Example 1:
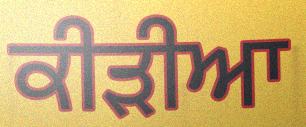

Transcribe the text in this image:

ਕੀੜੀਆ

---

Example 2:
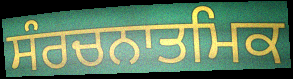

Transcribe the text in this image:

ਸੰਰਚਨਾਤਮਿਕ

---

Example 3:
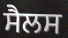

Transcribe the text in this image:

ਸੈਲਸ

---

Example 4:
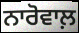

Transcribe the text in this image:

ਨਾਰੋਵਾਲ਼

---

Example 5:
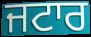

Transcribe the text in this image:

ਜਟਾਰ